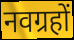
नवग्रहों